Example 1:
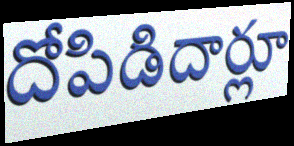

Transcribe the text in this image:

దోపిడిదార్లూ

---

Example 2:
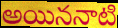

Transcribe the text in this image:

అయిననాటి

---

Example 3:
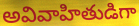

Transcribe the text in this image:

అవివాహితుడిగా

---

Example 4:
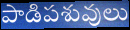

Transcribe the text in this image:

పాడిపశువులు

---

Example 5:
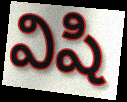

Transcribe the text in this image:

విషి